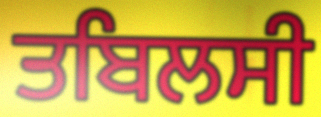
ਤਬਿਲਸੀ